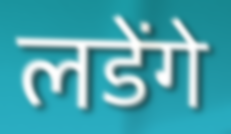
लडेंगे